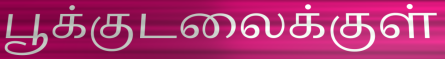
பூக்குடலைக்குள்